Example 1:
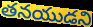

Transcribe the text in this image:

తనయుడని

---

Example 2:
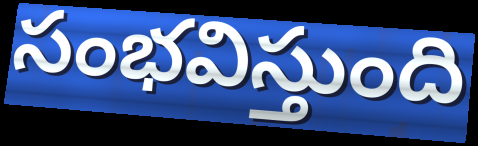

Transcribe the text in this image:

సంభవిస్తుంది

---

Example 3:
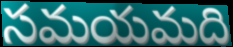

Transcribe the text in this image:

సమయమది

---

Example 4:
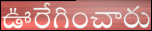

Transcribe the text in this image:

ఊరేగించారు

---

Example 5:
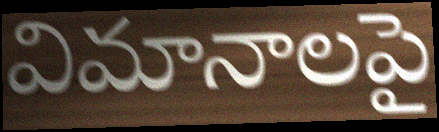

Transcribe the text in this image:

విమానాలపై